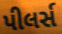
પીલર્સ